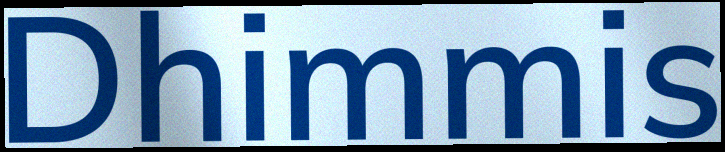
Dhimmis